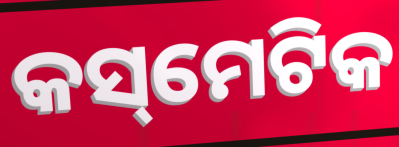
କସ୍‌ମେଟିକ